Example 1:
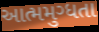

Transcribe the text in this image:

આત્મમુગ્ધતા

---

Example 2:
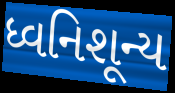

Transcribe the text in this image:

ધ્વનિશૂન્ય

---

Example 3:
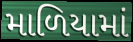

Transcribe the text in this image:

માળિયામાં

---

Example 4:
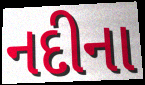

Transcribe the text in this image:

નદીના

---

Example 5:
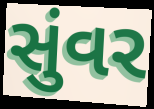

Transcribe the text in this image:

સુંવર